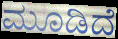
ಮೂಡಿದೆ